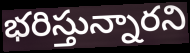
భరిస్తున్నారని